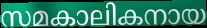
സമകാലികനായ